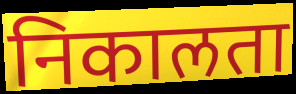
निकालता